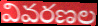
వివరణల